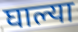
घाल्या